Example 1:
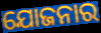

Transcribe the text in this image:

ଯୋଜନାର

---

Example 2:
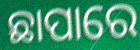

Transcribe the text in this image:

ଛାପାରେ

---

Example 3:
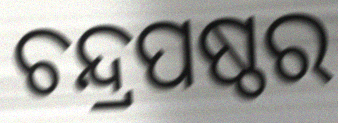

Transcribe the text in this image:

ଚନ୍ଦ୍ରପଷ୍ଠର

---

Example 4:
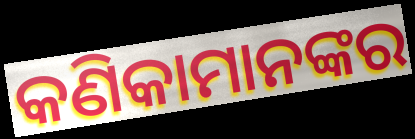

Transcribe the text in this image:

କଣିକାମାନଙ୍କର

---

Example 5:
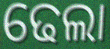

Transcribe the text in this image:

ଢେଲା